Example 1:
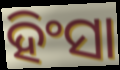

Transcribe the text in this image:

ହିଂସା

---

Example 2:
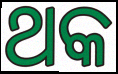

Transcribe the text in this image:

ଥକ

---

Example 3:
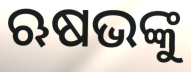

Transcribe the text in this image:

ଋଷଭଙ୍କୁ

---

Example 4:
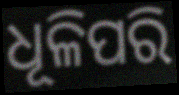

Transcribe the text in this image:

ଧୂଳିପରି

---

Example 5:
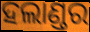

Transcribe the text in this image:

ହଲାଣ୍ଡର